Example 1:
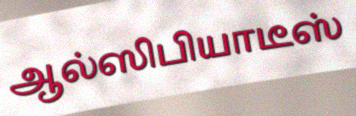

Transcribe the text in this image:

ஆல்ஸிபியாடீஸ்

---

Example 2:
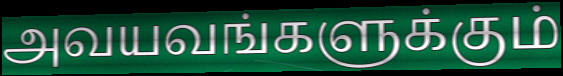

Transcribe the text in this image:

அவயவங்களுக்கும்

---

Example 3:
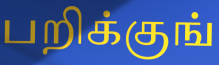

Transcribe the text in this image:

பறிக்குங்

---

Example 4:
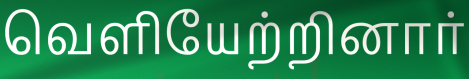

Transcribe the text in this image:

வெளியேற்றினார்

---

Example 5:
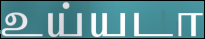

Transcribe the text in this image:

உய்யடா